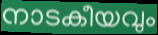
നാടകീയവും